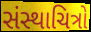
સંસ્થાચિત્રો